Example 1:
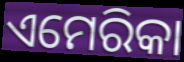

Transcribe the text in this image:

ଏମେରିକା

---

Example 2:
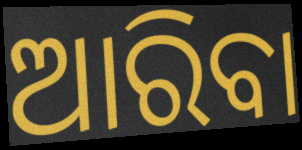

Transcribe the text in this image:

ଆରିବା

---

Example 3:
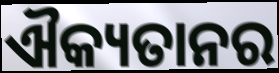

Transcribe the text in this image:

ଐକ୍ୟତାନର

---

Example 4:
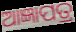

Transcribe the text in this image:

ଆଜ୍ଞାପତ୍ର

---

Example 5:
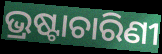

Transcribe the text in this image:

ଭ୍ରଷ୍ଟାଚାରିଣୀ